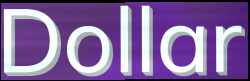
Dollar